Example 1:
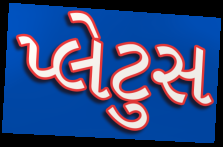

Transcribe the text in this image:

પ્લેટુસ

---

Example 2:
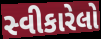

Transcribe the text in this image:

સ્વીકારેલો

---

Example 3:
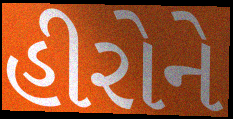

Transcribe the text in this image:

હીરોને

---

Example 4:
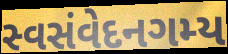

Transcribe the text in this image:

સ્વસંવેદનગમ્ય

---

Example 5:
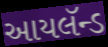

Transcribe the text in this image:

આયલૅન્ડ